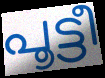
പൂട്ടീ